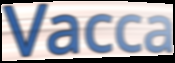
Vacca